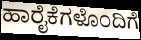
ಹಾರೈಕೆಗಳೊಂದಿಗೆ